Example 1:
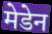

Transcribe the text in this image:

मेडेन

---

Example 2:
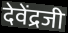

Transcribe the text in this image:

देवेंद्रजी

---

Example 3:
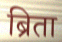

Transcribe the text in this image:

ब्रिता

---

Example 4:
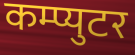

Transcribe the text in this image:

कम्प्युटर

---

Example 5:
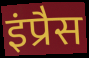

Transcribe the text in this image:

इंप्रैस